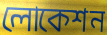
লোকেশন